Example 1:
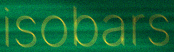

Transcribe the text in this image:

isobars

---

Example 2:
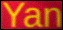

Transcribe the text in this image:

Yan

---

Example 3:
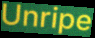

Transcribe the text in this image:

Unripe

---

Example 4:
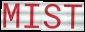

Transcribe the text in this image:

MIST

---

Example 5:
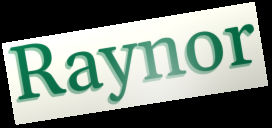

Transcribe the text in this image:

Raynor